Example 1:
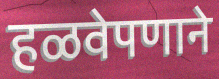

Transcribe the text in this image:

हळवेपणाने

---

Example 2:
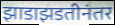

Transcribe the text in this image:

झाडाझडतीनंतर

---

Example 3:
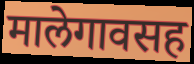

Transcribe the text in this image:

मालेगावसह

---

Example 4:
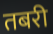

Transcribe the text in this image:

तबरी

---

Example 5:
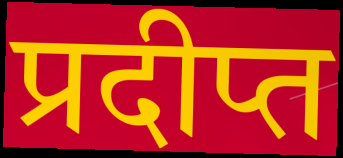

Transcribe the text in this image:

प्रदीप्त